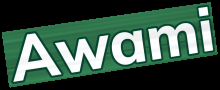
Awami